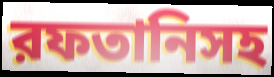
রফতানিসহ